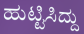
ಹುಟ್ಟಿಸಿದ್ದು